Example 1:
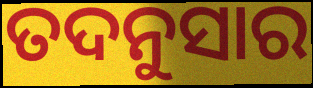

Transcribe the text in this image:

ତଦନୁସାର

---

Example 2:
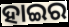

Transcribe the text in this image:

ହାଇର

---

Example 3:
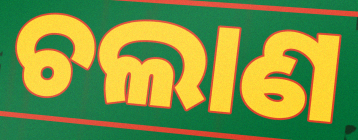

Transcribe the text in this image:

ଚଲାଣ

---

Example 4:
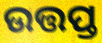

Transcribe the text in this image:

ଉତ୍ତପ୍ତ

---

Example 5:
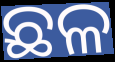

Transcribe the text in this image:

ଛଳ